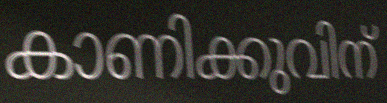
കാണിക്കുവിന്